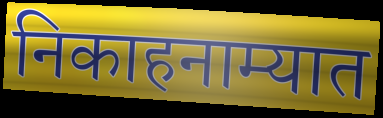
निकाहनाम्यात